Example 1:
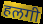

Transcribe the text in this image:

हलगी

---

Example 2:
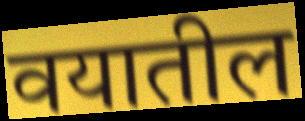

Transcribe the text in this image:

वयातील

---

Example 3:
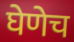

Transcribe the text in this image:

घेणेच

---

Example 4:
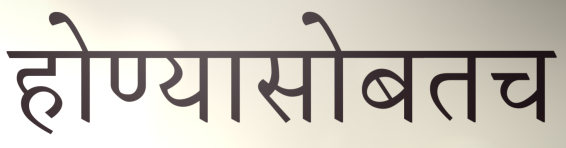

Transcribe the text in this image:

होण्यासोबतच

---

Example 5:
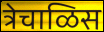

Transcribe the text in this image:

त्रेचाळिस